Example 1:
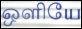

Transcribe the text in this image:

ஒளியே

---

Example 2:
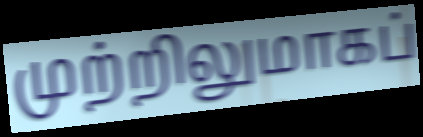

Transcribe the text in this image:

முற்றிலுமாகப்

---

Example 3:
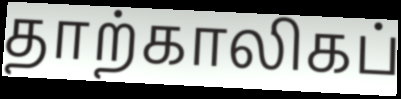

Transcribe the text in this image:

தாற்காலிகப்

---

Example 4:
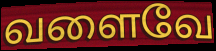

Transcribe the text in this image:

வளைவே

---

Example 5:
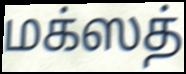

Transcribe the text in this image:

மக்ஸத்